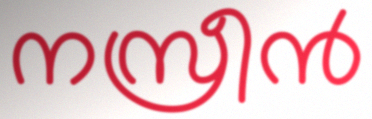
നസ്രീൻ